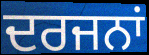
ਦਰਜਨਾਂ